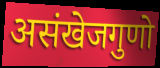
असंखेजगुणो